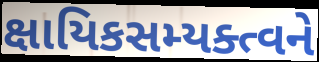
ક્ષાયિકસમ્યક્ત્વને